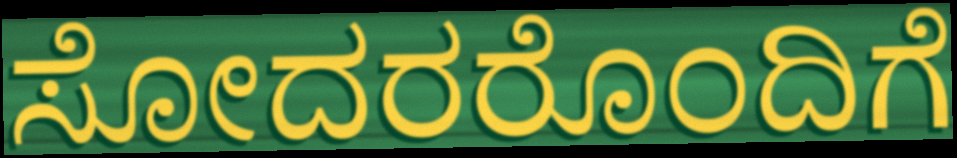
ಸೋದರರೊಂದಿಗೆ